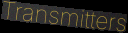
Transmitters